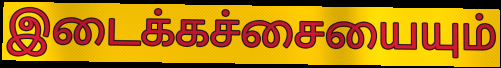
இடைக்கச்சையையும்